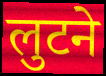
लुटने